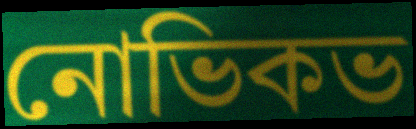
নোভিকভ